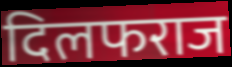
दिलफराज